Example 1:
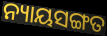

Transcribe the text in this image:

ନ୍ୟାୟସଙ୍ଗତ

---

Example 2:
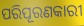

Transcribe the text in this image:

ପରିପୂରଣକାରୀ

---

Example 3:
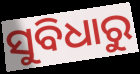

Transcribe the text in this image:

ସୁବିଧାରୁ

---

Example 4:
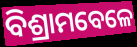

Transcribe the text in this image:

ବିଶ୍ରାମବେଳେ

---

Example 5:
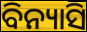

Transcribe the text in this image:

ବିନ୍ୟାସି